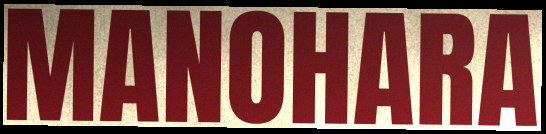
MANOHARA